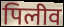
पिलीव